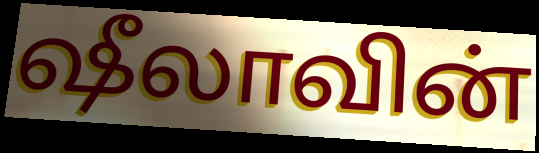
ஷீலாவின்